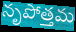
నృపోత్తమ